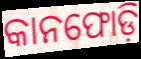
କାନଫୋଡ଼ି